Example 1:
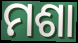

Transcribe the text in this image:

ମଶା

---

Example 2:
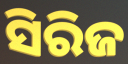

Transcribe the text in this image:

ସିରିଜ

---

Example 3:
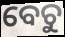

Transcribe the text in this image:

ବେଚୁ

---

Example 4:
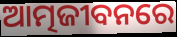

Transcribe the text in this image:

ଆତ୍ମଜୀବନରେ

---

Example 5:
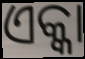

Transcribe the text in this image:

ଏକ୍କା